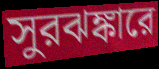
সুরঝঙ্কারে